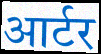
आर्टर